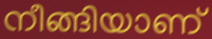
നീങ്ങിയാണ്